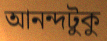
আনন্দটুকু